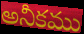
అనీకము